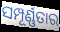
ସମ୍ପୂର୍ଣ୍ଣତାର